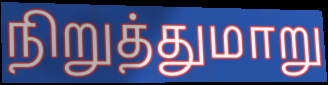
நிறுத்துமாறு